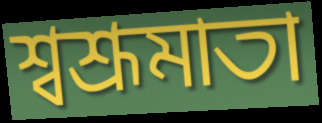
শ্বশ্রূমাতা